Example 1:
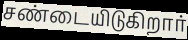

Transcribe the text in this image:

சண்டையிடுகிறார்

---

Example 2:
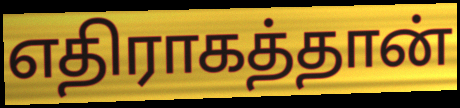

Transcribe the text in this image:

எதிராகத்தான்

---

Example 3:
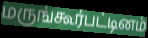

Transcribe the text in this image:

மருங்கூர்பட்டினம்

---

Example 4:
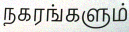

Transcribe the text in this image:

நகரங்களும்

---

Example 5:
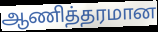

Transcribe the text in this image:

ஆணித்தரமான